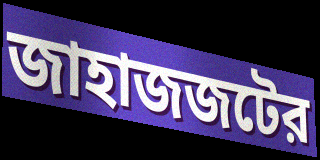
জাহাজজটের